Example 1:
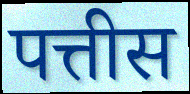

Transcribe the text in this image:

पत्तीस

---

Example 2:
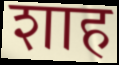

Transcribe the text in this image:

शाह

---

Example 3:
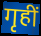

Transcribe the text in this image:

गृहीं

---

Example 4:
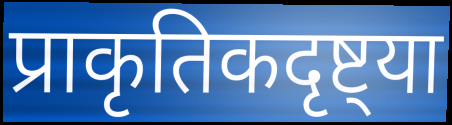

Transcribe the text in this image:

प्राकृतिकदृष्ट्या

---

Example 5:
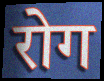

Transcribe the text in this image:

रोग